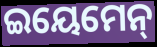
ଇୟେମେନ୍